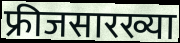
फ्रीजसारख्या